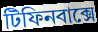
টিফিনবাক্সে